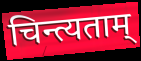
चिन्त्यताम्